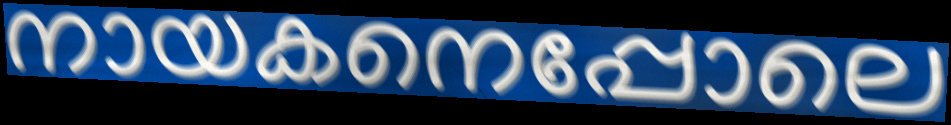
നായകനെപ്പോലെ